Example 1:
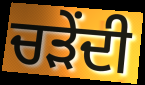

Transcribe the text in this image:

ਚੜੇਂਦੀ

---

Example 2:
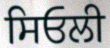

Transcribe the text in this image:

ਸਿਓਲੀ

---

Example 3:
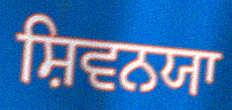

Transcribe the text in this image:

ਸ਼ਿਵਨਯਾ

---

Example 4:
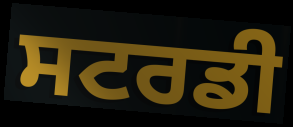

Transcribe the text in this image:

ਸਟਰਡੀ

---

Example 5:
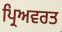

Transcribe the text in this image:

ਪ੍ਰਿਅਵਰਤ